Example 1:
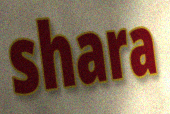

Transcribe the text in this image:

shara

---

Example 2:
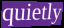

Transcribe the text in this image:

quietly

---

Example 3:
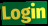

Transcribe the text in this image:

Login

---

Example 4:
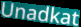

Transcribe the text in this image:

Unadkat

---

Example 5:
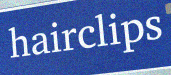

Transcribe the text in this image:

hairclips